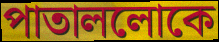
পাতাললোকে